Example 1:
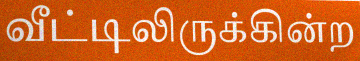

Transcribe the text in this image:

வீட்டிலிருக்கின்ற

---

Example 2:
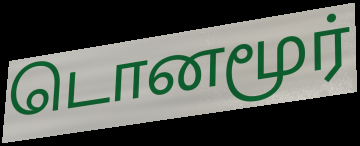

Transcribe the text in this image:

டொனமூர்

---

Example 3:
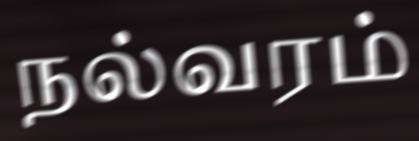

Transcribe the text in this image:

நல்வரம்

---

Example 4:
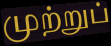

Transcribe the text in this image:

முற்றுப்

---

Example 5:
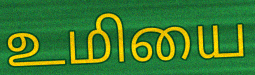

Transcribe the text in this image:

உமியை